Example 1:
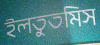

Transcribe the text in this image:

ইলতুতমিস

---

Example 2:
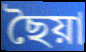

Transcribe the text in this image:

ছৈয়া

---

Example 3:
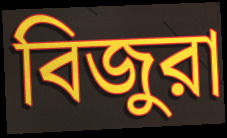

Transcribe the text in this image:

বিজুরা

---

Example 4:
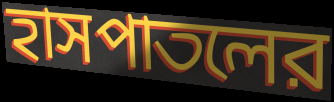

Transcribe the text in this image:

হাসপাতলের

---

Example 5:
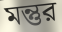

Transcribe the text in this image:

মন্তুর